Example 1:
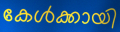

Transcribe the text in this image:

കേൾക്കായി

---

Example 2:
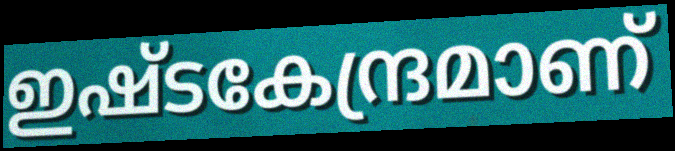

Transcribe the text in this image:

ഇഷ്ടകേന്ദ്രമാണ്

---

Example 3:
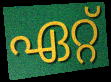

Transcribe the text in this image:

ഏറ്റ്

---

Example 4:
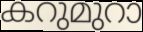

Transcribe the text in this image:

കറുമുറാ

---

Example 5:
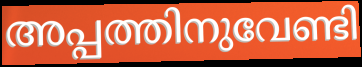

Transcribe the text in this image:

അപ്പത്തിനുവേണ്ടി